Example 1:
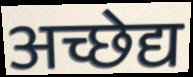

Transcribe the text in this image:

अच्छेद्य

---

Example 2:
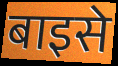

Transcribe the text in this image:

बाइसे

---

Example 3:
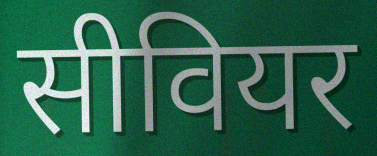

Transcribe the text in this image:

सीवियर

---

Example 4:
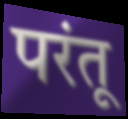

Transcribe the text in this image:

परंतू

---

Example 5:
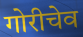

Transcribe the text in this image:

गोरीचेव